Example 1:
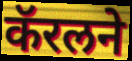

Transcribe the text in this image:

कॅरलने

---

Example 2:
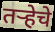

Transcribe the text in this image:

तर्‍हेचे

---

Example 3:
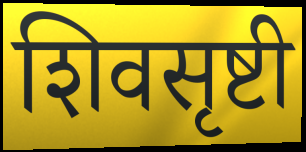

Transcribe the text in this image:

शिवसृष्टी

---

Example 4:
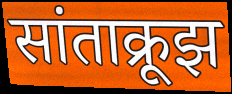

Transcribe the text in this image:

सांताक्रूझ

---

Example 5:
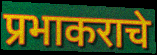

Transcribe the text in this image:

प्रभाकराचे